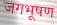
जगभूषण